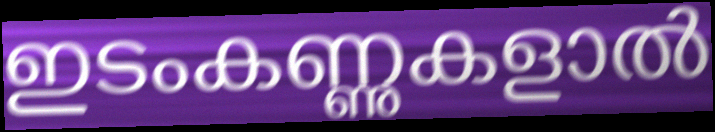
ഇടംകണ്ണുകളാൽ